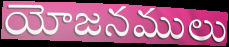
యోజనములు